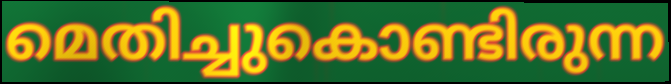
മെതിച്ചുകൊണ്ടിരുന്ന